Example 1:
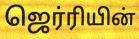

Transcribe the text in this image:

ஜெர்ரியின்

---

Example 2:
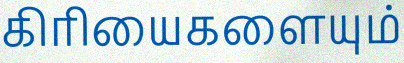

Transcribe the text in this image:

கிரியைகளையும்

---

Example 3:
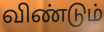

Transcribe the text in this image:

விண்டும்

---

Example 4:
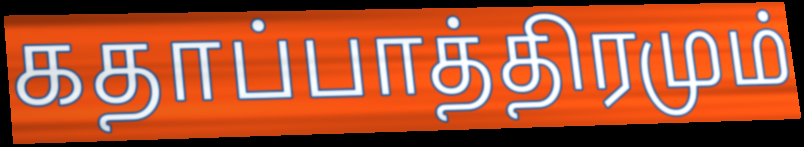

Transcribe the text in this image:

கதாப்பாத்திரமும்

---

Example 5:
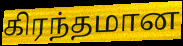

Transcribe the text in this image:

கிரந்தமான